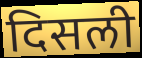
दिसली